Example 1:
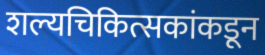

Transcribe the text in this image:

शल्यचिकित्सकांकडून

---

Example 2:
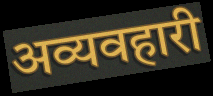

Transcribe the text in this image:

अव्यवहारी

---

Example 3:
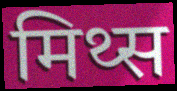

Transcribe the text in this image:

मिथ्स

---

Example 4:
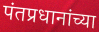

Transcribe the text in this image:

पंतप्रधानांच्या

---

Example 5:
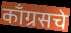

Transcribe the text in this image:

काँग्रसचे